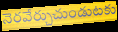
నెరవేర్చుచుండుటకు